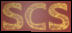
SCS